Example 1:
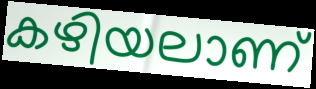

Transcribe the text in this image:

കഴിയലാണ്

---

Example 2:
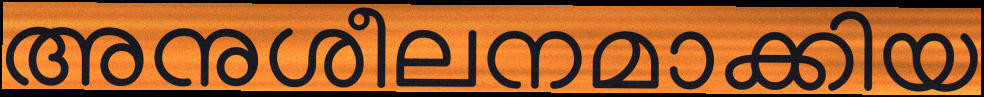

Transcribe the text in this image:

അനുശീലനമാക്കിയ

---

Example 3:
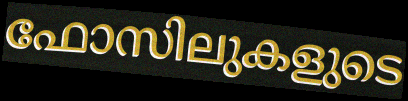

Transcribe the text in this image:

ഫോസിലുകളുടെ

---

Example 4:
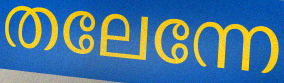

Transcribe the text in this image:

തലേന്നേ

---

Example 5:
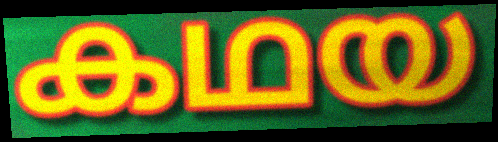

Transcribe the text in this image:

കഥയ